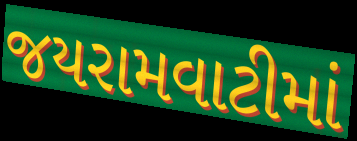
જયરામવાટીમાં